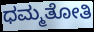
ಧಮ್ಮತೋತಿ